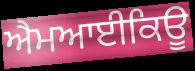
ਐਮਆਈਕਿਊ